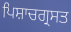
ਪਿਸ਼ਾਚਗ੍ਰਸਤ